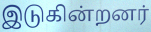
இடுகின்றனர்